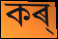
কৰ্